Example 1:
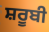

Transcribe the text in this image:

ਸ਼ਰੂਬੀ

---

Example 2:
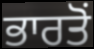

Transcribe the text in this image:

ਭਾਰਤੋਂ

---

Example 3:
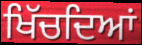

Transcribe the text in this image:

ਖਿੱਚਦਿਆਂ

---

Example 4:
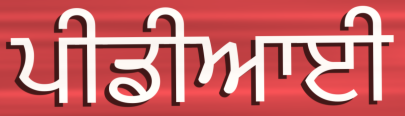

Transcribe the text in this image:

ਪੀਡੀਆਈ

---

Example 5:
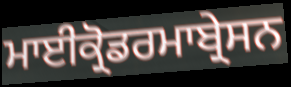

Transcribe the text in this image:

ਮਾਈਕ੍ਰੋਡਰਮਾਬ੍ਰੇਸਨ